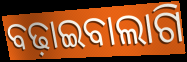
ବଢ଼ାଇବାଲାଗି